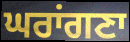
ਘਰਾਂਗਣਾ